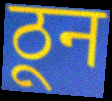
ठून